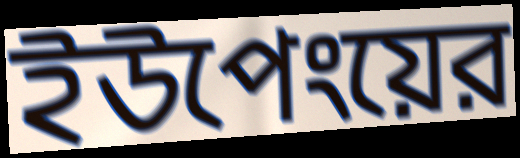
ইউপেংয়ের